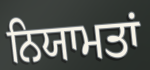
ਨਿਯਾਮਤਾਂ